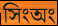
সিংঅং